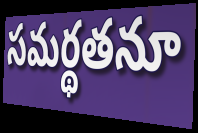
సమర్థతనూ